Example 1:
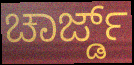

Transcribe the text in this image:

ಚಾರ್ಜ್ಡ್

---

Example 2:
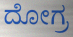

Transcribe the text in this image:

ದೋಗ್ರ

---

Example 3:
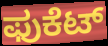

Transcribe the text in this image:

ಫುಕೆಟ್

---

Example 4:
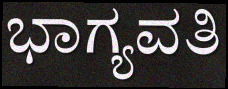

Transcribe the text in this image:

ಭಾಗ್ಯವತಿ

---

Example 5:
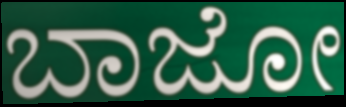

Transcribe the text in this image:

ಬಾಜೋ